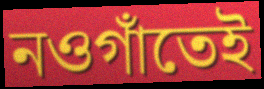
নওগাঁতেই